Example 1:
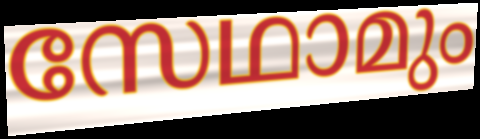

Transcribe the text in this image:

സേഥാമും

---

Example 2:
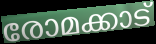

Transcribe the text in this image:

രോമക്കാട്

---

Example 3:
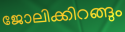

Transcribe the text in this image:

ജോലിക്കിറങ്ങും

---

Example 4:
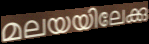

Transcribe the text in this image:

മലയയിലേക്കു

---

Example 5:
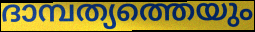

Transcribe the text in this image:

ദാമ്പത്യത്തെയും